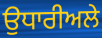
ਉਧਾਰੀਅਲੇ